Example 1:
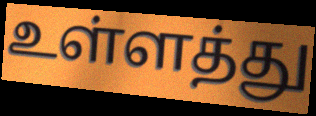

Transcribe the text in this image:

உள்ளத்து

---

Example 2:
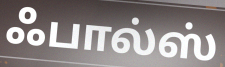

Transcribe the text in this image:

ஃபால்ஸ்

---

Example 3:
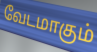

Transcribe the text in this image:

வேடமாகும்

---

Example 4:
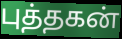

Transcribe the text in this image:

புத்தகன்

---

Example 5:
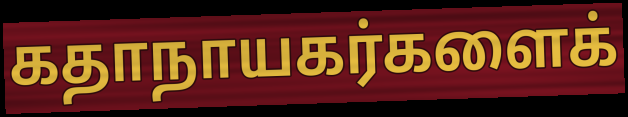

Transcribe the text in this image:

கதாநாயகர்களைக்